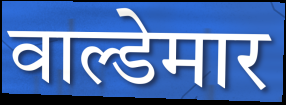
वाल्डेमार